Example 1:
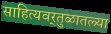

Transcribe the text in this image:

साहित्यवर्तुळातल्या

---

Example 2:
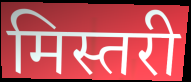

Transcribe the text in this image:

मिस्तरी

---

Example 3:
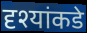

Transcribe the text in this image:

दृश्यांकडे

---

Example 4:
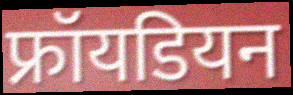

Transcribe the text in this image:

फ्रॉयडियन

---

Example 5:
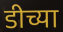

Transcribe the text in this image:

डीच्या